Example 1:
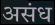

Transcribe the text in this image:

असंध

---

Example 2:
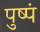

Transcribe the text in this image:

पुष्पं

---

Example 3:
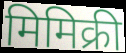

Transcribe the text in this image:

मिमिक्री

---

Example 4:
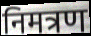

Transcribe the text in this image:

निमत्रण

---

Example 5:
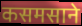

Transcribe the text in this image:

कसमसाने